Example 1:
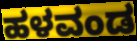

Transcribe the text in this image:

ಹಳವಂಡ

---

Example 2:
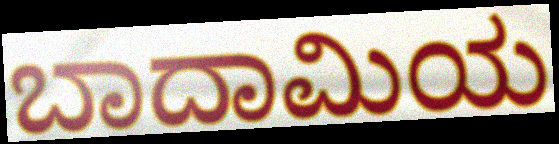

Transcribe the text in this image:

ಬಾದಾಮಿಯ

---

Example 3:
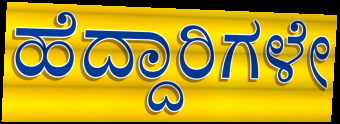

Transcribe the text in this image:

ಹೆದ್ದಾರಿಗಳೇ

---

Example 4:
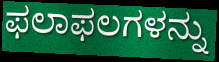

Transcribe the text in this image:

ಫಲಾಫಲಗಳನ್ನು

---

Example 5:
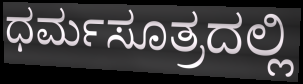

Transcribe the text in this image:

ಧರ್ಮಸೂತ್ರದಲ್ಲಿ